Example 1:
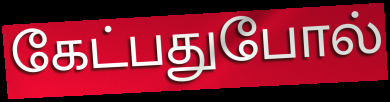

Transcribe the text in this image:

கேட்பதுபோல்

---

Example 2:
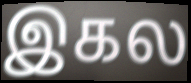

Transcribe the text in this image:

இகல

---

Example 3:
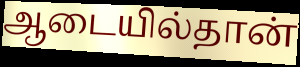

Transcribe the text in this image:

ஆடையில்தான்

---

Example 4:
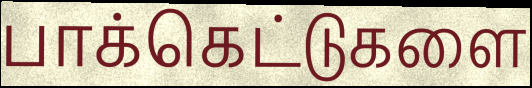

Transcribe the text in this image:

பாக்கெட்டுகளை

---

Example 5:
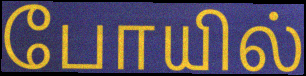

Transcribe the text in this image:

போயில்